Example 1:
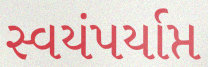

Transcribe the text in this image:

સ્વયંપર્યાપ્ત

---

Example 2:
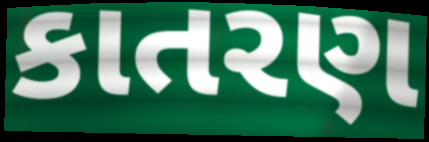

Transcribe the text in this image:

કાતરણ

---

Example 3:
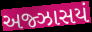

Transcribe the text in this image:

અજ્ઝાસયં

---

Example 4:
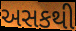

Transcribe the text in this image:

અસકથી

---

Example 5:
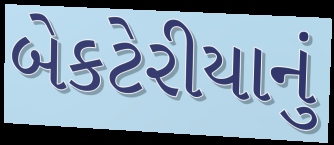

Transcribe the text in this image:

બેકટેરીયાનું